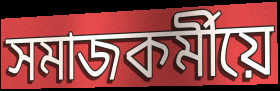
সমাজকৰ্মীয়ে